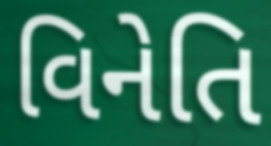
વિનેતિ